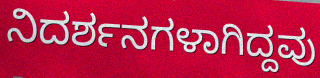
ನಿದರ್ಶನಗಳಾಗಿದ್ದವು